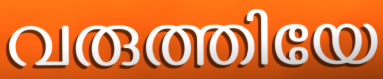
വരുത്തിയേ